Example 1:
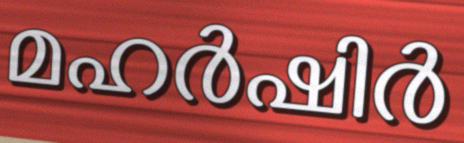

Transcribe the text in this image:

മഹർഷിർ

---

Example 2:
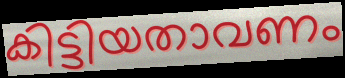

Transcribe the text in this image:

കിട്ടിയതാവണം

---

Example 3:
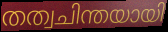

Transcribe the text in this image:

തത്വചിന്തയായി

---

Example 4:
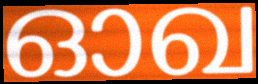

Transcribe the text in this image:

ഓഖ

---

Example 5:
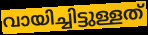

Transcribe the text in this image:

വായിച്ചിട്ടുള്ളത്